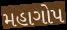
મહાગોપ